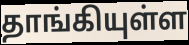
தாங்கியுள்ள